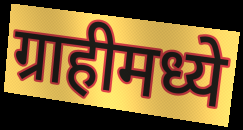
ग्राहीमध्ये